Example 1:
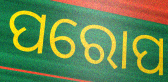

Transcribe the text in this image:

ପରୋପ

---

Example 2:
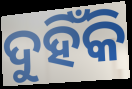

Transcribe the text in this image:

ଦୁହିଁକି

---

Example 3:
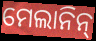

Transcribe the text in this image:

ମେଲାନିନ୍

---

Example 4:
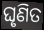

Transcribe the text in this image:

ଘୃଣିତ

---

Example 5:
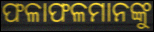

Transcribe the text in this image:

ଫଳାଫଳମାନଙ୍କୁ